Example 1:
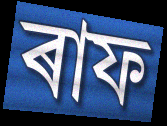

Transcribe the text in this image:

ৰাফ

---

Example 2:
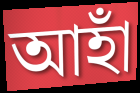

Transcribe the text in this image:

আহাঁ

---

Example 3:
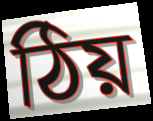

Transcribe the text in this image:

ঠিয়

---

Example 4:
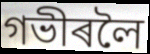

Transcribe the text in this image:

গভীৰলৈ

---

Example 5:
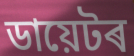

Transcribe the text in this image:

ডায়েটৰ